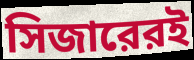
সিজারেরই